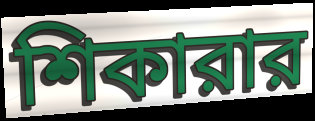
শিকারার